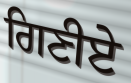
ਗਿਣੀਏ